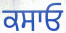
ਕਸਾਓ